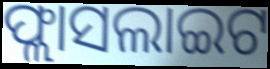
ଫ୍ଲାସଲାଇଟ